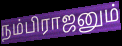
நம்பிராஜனும்